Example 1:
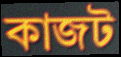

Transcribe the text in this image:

কাজট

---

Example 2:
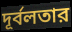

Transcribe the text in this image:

দূর্বলতার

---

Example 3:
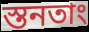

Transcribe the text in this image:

স্তনতাং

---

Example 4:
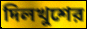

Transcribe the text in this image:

দিলখুশের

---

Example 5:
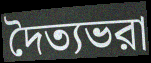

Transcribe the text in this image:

দৈত্যভরা